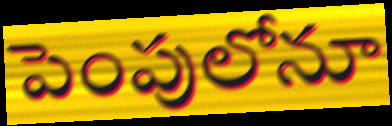
పెంపులోనూ